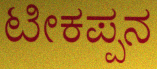
ಟೀಕಪ್ಪನ